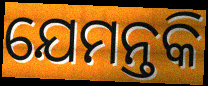
ଯେମନ୍ତକି